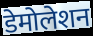
डेमोलेशन